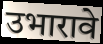
उभारावे